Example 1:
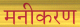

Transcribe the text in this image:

मनीकरण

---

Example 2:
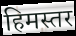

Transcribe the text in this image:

हिमस्तर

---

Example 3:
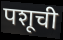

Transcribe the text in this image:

पशूची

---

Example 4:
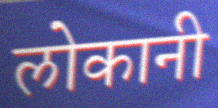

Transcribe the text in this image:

लोकानी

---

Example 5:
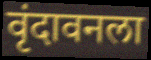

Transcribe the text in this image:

वृंदावनला